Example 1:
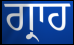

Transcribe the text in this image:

ਗ੍ਰਾਹ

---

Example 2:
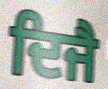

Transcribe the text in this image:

ਦਿਜੈ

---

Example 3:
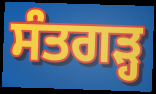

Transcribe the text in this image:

ਸੰਤਗੜ੍ਹ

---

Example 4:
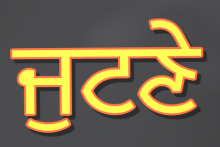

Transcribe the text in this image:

ਜੁਟਣੇ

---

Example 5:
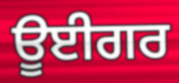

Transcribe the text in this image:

ਊਈਗਰ